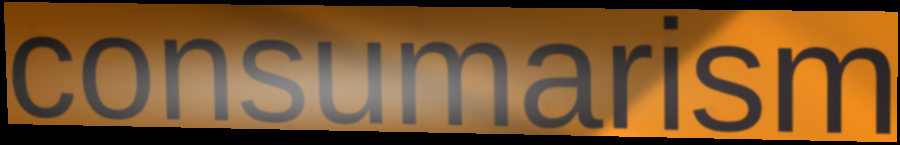
consumarism